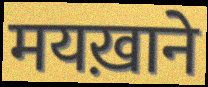
मयख़ाने